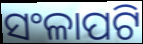
ସଂଳାପଟି